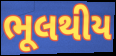
ભૂલથીય